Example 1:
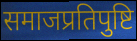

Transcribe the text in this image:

समाजप्रतिपुष्टि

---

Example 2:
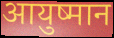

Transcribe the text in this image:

आयुष्मान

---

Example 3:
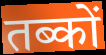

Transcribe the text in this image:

तब्कों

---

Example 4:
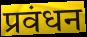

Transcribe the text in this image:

प्रवंधन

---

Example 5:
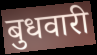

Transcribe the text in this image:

बुधवारी